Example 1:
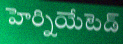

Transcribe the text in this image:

హెర్నియేటెడ్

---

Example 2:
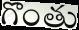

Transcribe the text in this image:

గొంతు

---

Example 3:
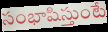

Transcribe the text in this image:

సంభాషిస్తుంటే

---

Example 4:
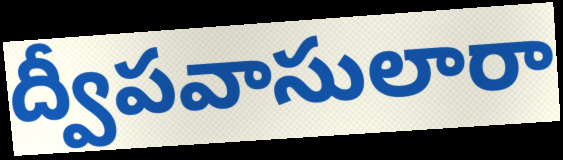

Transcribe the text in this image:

ద్వీపవాసులారా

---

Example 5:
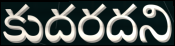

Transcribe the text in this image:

కుదరదని